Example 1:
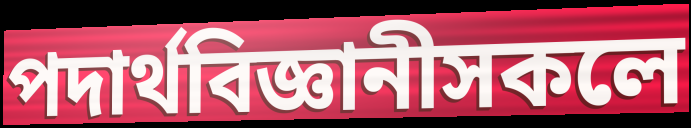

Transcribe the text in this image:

পদাৰ্থবিজ্ঞানীসকলে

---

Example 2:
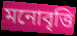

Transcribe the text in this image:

মনোবৃত্তি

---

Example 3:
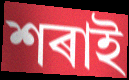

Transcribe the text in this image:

শৰাই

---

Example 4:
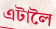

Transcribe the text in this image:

এটালৈ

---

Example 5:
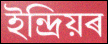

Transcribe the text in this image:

ইন্দ্ৰিয়ৰ